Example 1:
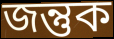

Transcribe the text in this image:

জন্তুক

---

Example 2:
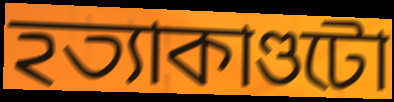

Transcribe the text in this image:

হত্যাকাণ্ডটো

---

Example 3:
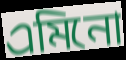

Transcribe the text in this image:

এমিনো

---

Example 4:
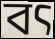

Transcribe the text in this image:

বৎ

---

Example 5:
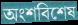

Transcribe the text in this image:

অংশবিশেষ